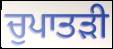
ਚੁਪਾਤੜੀ